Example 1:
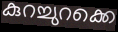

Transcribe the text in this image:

കുറച്ചുറക്കെ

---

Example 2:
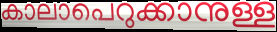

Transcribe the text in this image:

കാലാപെറുക്കാനുള്ള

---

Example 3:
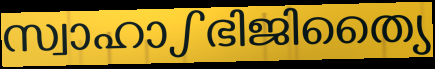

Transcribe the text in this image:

സ്വാഹാഽഭിജിത്യൈ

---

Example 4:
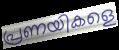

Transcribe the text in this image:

പ്രണയികളെ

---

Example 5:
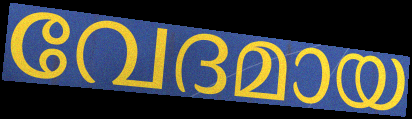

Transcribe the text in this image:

വേദമായ